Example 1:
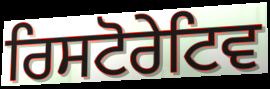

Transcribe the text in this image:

ਰਿਸਟੋਰੇਟਿਵ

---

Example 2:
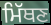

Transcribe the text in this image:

ਮਿੱਥਣ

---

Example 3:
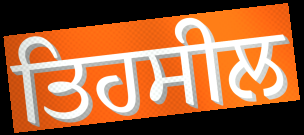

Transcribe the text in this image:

ਤਿਹਸੀਲ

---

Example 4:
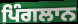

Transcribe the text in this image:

ਪਿੰਗਲਾਨ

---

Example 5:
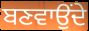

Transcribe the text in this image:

ਬਣਵਾਉਂਦੇ